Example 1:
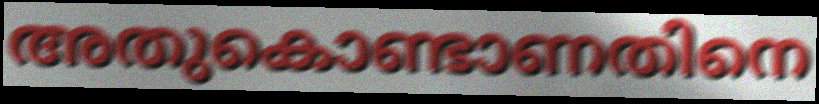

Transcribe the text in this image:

അതുകൊണ്ടാണതിനെ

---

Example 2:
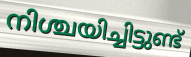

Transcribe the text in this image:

നിശ്ചയിച്ചിട്ടുണ്ട്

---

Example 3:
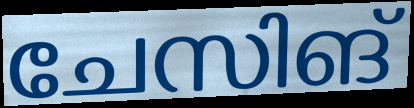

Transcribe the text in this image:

ചേസിങ്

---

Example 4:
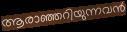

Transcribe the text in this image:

ആരാഞ്ഞറിയുന്നവൻ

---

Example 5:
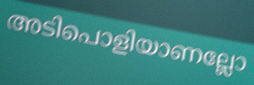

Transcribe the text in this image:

അടിപൊളിയാണല്ലോ